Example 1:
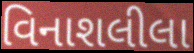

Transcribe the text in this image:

વિનાશલીલા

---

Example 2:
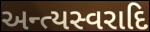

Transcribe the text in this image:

અન્ત્યસ્વરાદિ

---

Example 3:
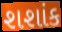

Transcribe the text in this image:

શશાંક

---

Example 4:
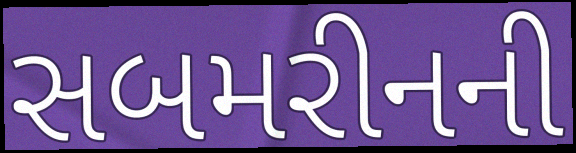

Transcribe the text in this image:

સબમરીનની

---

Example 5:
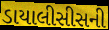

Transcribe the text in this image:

ડાયાલીસીસની